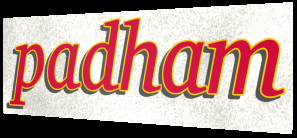
padham